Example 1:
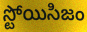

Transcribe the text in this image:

స్టోయిసిజం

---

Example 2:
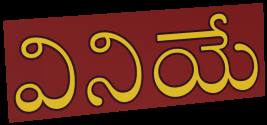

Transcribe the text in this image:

వినియే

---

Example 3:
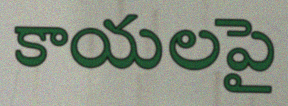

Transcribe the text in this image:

కాయలపై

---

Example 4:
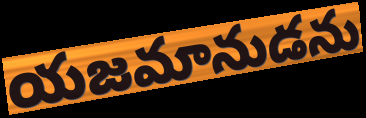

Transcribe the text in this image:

యజమానుడను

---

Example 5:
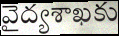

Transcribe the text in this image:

వైద్యశాఖకు